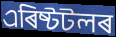
এৰিষ্টটলৰ